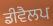
ਡੀਵੈਲਪ